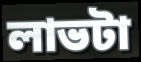
লাভটা